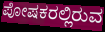
ಪೋಷಕರಲ್ಲಿರುವ